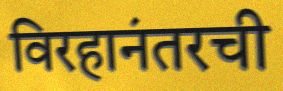
विरहानंतरची